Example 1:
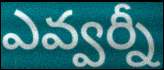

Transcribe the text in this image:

ఎవ్వర్నీ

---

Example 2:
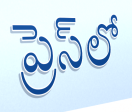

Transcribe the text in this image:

ప్రెస్‌లో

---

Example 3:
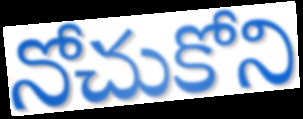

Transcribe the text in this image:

నోచుకోని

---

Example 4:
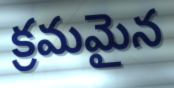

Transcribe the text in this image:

క్రమమైన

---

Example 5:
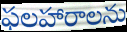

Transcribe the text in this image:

ఫలహారాలను